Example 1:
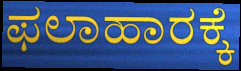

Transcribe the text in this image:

ಫಲಾಹಾರಕ್ಕೆ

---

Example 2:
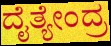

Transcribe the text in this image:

ದೈತ್ಯೇಂದ್ರ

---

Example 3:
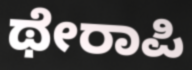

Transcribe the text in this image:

ಥೇರಾಪಿ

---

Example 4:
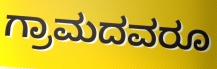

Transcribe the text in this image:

ಗ್ರಾಮದವರೂ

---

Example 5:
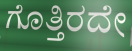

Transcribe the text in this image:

ಗೊತ್ತಿರದೇ